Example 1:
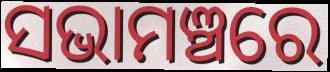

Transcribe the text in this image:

ସଭାମଞ୍ଚରେ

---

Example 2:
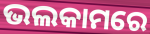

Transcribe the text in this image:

ଭଲକାମରେ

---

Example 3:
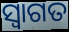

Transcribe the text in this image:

ସ୍ବାଗତ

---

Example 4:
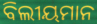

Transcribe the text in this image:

ବିଲୀୟମାନ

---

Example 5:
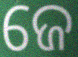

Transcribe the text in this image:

ଜେ